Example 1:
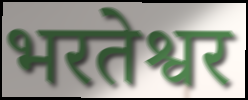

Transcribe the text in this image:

भरतेश्वर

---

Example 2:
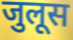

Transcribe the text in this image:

जुलूस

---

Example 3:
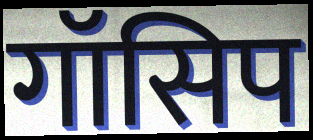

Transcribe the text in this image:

गॉसिप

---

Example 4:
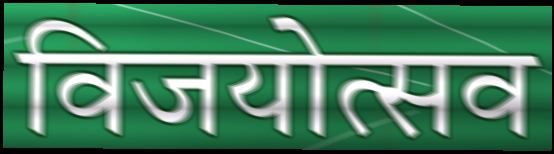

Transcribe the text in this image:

विजयोत्सव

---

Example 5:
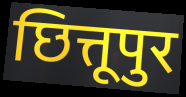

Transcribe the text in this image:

छित्तूपुर